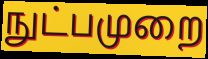
நுட்பமுறை